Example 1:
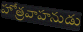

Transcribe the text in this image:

హోత్రవాహనుడు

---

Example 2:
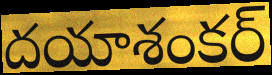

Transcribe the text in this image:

దయాశంకర్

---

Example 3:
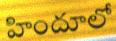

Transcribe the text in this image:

హిందూలో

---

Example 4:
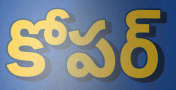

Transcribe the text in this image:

కోపర్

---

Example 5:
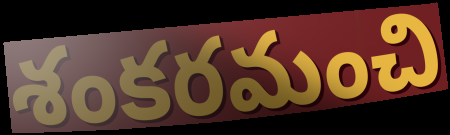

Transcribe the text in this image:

శంకరమంచి